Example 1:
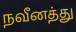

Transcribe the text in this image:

நவீனத்து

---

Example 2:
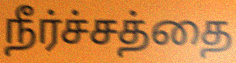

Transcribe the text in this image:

நீர்ச்சத்தை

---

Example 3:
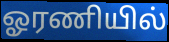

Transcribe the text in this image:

ஓரணியில்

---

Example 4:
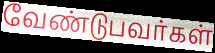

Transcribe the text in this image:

வேண்டுபவர்கள்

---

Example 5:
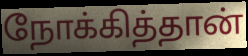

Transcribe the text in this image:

நோக்கித்தான்